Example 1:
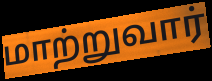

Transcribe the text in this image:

மாற்றுவார்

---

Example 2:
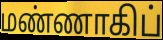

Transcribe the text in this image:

மண்ணாகிப்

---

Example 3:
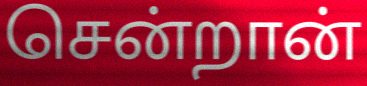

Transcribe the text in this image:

சென்றான்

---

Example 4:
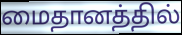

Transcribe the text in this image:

மைதானத்தில்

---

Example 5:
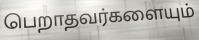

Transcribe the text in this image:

பெறாதவர்களையும்